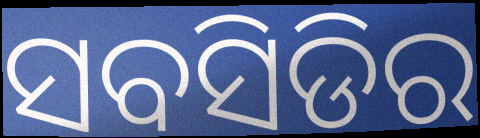
ସବସିଡିର